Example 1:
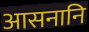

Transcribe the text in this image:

आसनानि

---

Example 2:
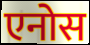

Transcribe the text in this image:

एनोस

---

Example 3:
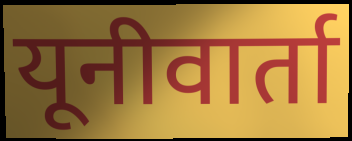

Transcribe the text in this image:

यूनीवार्ता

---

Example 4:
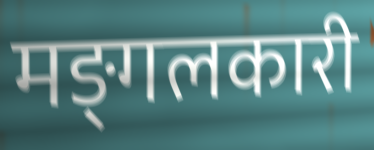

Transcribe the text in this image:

मङ्गलकारी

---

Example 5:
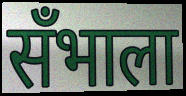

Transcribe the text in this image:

सँभाला